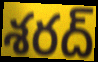
శరద్